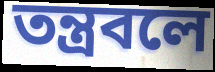
তন্ত্রবলে